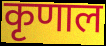
कृणाल